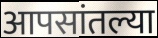
आपसांतल्या